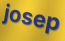
josep